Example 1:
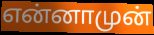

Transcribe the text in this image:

என்னாமுன்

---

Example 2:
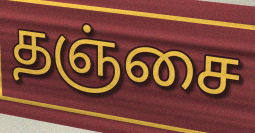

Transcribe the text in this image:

தஞ்சை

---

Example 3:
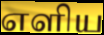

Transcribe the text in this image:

எளிய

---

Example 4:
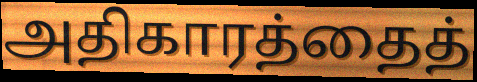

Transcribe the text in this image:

அதிகாரத்தைத்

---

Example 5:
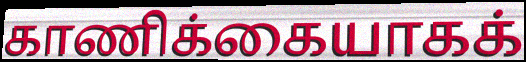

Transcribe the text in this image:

காணிக்கையாகக்